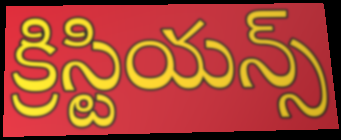
క్రిస్టియన్స్